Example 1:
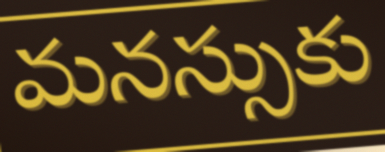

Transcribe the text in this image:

మనస్సుకు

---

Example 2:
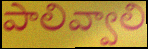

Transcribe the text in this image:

పాలివ్వాలి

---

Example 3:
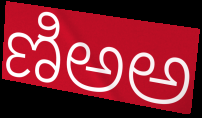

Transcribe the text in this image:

ణిఅఅ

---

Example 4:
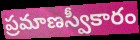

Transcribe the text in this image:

ప్రమాణస్వీకారం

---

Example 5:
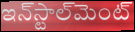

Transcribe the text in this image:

ఇన్‌స్టాల్‌మెంట్